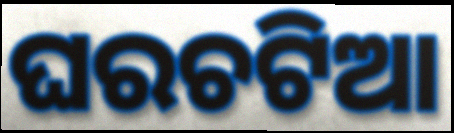
ଘରଚଟିଆ